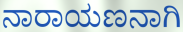
ನಾರಾಯಣನಾಗಿ